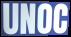
UNOC